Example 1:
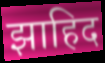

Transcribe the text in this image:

झाहिद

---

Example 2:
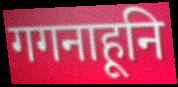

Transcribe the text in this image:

गगनाहूनि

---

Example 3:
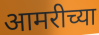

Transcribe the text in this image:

आमरीच्या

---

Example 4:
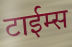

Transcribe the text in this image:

टाईम्स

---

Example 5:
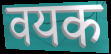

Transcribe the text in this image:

वयक